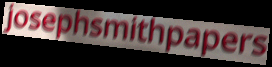
josephsmithpapers